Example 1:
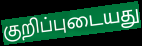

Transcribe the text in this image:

குறிப்புடையது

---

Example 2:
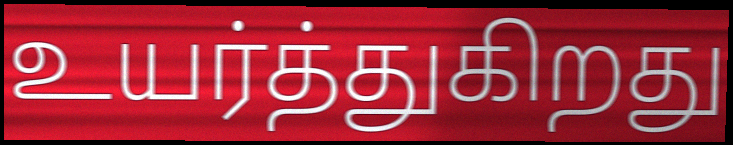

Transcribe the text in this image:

உயர்த்துகிறது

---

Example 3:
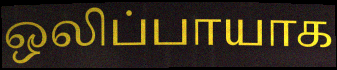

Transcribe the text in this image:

ஒலிப்பாயாக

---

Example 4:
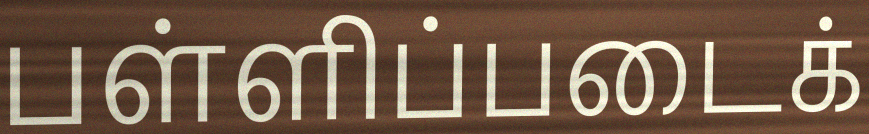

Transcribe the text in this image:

பள்ளிப்படைக்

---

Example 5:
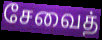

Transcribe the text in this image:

சேவைத்